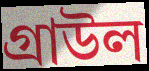
গ্রাউল